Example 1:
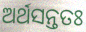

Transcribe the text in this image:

ଅର୍ଥସନ୍ତତଃ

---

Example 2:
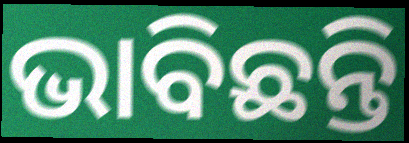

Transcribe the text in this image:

ଭାବିଛନ୍ତି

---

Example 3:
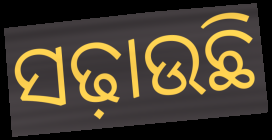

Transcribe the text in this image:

ସଢ଼ାଉଛି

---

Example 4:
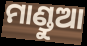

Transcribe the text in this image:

ମାଣ୍ଡୁଆ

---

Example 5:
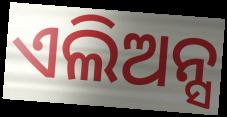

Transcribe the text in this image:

ଏଲିଅନ୍ସ